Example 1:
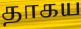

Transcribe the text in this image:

தாகய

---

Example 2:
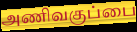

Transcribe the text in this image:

அணிவகுப்பை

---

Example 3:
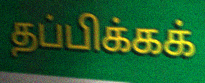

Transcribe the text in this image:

தப்பிக்கக்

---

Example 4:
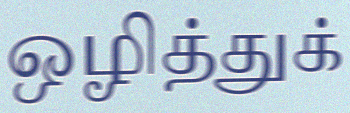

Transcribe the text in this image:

ஒழித்துக்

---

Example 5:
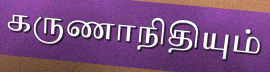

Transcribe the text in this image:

கருணாநிதியும்